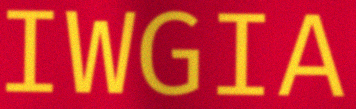
IWGIA